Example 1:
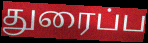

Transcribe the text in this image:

துரைப்ப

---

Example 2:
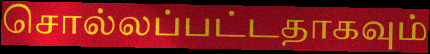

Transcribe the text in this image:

சொல்லப்பட்டதாகவும்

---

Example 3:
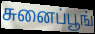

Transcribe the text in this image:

சுனைப்பூங்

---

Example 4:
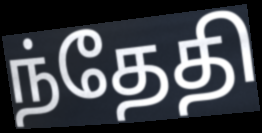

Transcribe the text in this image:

ந்தேதி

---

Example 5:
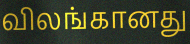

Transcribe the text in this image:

விலங்கானது